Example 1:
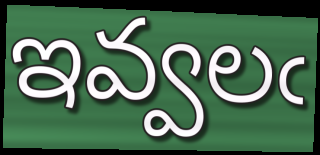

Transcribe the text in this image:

ఇవ్వలఁ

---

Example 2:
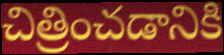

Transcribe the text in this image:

చిత్రించడానికి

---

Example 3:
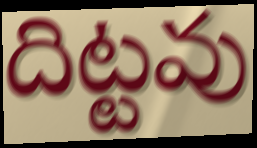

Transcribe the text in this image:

దిట్టవు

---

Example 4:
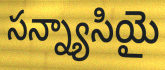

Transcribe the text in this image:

సన్న్యాసియై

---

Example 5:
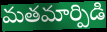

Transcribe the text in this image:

మతమార్పిడి